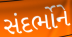
સંદર્ભોને